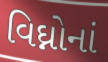
વિઘ્નોનાં